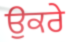
ਉਕਰੇ